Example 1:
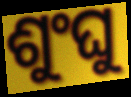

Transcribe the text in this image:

ଶୁଂଘୁ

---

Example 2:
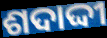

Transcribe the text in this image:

ଶଦାଦ୍ଦୀ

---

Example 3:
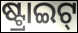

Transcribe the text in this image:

ଷ୍ଟ୍ରାଇଟ୍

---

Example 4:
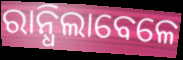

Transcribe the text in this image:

ରାନ୍ଧିଲାବେଳେ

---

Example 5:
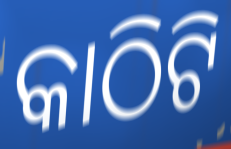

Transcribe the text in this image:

କାଠିଟି